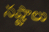
నష్టాలు